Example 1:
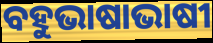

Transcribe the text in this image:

ବହୁଭାଷାଭାଷୀ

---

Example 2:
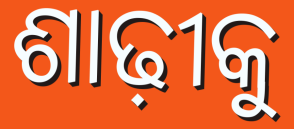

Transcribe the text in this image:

ଶାଢ଼ୀକୁ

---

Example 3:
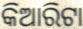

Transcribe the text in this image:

କିଆରିଟା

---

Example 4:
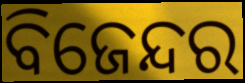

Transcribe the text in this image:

ବିଜେନ୍ଦର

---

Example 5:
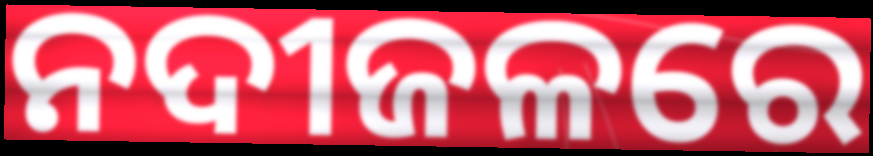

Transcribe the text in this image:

ନଦୀଜଳରେ